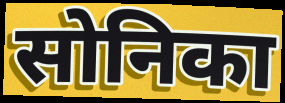
सोनिका